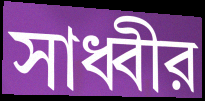
সাধ্বীর